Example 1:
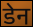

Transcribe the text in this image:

डेन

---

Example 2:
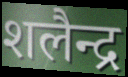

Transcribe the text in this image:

शलैन्द्र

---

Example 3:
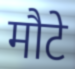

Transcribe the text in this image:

मौटे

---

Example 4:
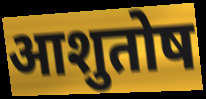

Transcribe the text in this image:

आशुतोष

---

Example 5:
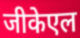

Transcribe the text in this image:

जीकेएल